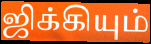
ஜிக்கியும்